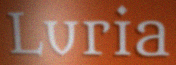
Luria